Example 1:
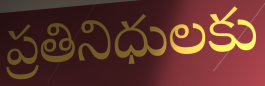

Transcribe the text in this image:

ప్రతినిధులకు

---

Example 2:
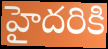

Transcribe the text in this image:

హైదరికి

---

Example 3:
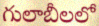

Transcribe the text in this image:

గులాబీలలో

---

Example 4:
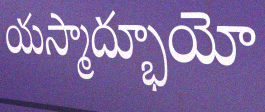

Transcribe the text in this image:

యస్మాద్భూయో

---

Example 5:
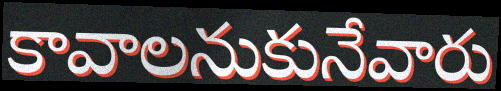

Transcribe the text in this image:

కావాలనుకునేవారు